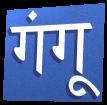
गंगू